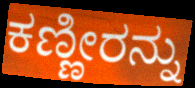
ಕಣ್ಣೀರನ್ನು